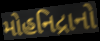
મોહનિદ્રાનો